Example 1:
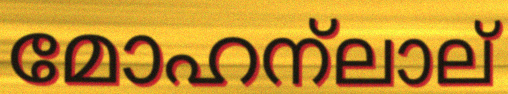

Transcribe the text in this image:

മോഹന്ലാല്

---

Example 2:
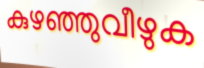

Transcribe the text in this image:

കുഴഞ്ഞുവീഴുക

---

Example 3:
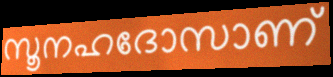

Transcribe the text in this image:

സൂനഹദോസാണ്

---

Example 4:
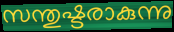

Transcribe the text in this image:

സന്തുഷ്ടരാകുന്നു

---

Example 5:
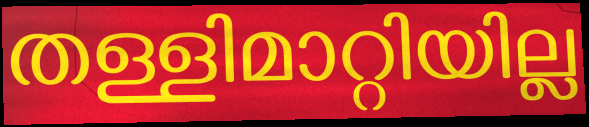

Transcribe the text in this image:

തള്ളിമാറ്റിയില്ല